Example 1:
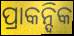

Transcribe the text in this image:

ପ୍ରାକନ୍ଦିକ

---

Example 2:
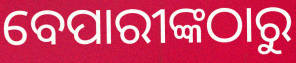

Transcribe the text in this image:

ବେପାରୀଙ୍କଠାରୁ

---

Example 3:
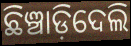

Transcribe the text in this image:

ଛିଞ୍ଚାଡ଼ିଦେଲି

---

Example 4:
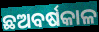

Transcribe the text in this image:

ଛଅବର୍ଷକାଳ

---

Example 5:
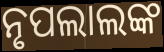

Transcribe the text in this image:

ନୃପଲାଲଙ୍କ